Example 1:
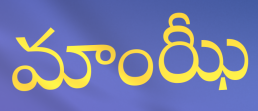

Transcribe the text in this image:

మాంఝీ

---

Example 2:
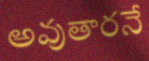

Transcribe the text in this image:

అవుతారనే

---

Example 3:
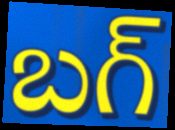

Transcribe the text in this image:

బగ్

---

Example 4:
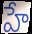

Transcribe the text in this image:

హే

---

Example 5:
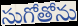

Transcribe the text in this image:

సుగోతోను